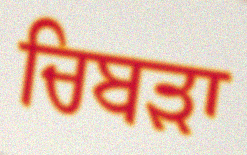
ਚਿਬੜਾ